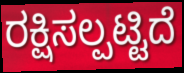
ರಕ್ಷಿಸಲ್ಪಟ್ಟಿದೆ